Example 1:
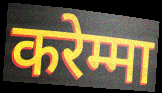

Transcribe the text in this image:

करेम्मा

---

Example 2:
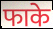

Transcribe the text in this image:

फाके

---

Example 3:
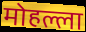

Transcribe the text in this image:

मोहल्ला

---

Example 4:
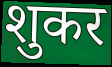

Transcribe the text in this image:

शुकर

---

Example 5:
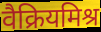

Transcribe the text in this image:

वैक्रियमिश्र